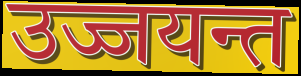
उज्जयन्त